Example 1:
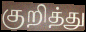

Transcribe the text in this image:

குறித்து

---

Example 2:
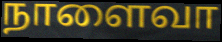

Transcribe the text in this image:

நாளைவா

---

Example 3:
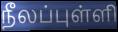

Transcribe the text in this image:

நீலப்புள்ளி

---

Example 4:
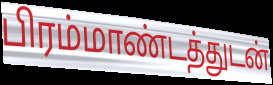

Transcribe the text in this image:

பிரம்மாண்டத்துடன்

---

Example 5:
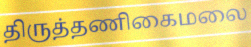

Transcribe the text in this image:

திருத்தணிகைமலை